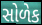
સોળેક